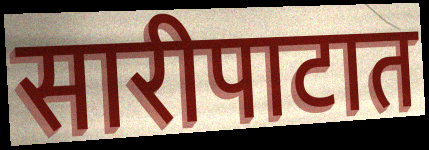
सारीपाटात